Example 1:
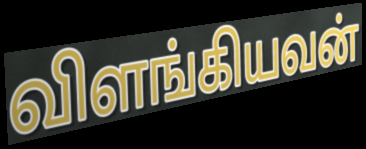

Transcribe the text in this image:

விளங்கியவன்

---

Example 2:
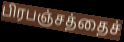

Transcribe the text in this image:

பிரபஞ்சத்தைச்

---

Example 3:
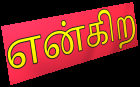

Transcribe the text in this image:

என்கிற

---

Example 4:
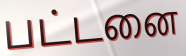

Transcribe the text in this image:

பட்டனை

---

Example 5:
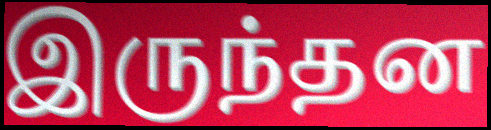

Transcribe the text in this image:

இருந்தன